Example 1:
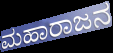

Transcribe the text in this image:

ಮಹಾರಾಜನ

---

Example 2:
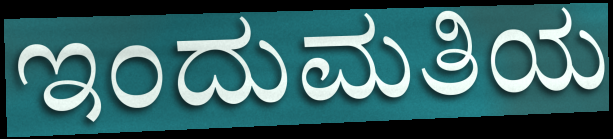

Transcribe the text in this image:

ಇಂದುಮತಿಯ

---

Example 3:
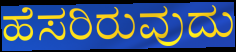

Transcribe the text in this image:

ಹೆಸರಿರುವುದು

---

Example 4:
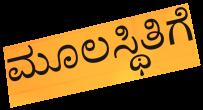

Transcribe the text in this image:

ಮೂಲಸ್ಥಿತಿಗೆ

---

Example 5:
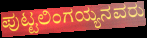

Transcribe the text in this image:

ಪುಟ್ಟಲಿಂಗಯ್ಯನವರು